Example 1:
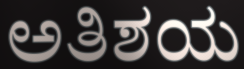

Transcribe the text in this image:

ಅತಿಶಯ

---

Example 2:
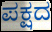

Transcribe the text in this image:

ಪಕ್ಷದ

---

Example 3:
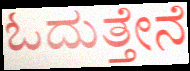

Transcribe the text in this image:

ಓದುತ್ತೇನೆ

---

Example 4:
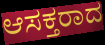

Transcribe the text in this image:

ಆಸಕ್ತರಾದ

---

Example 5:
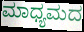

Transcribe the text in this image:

ಮಾಧ್ಯಮದ